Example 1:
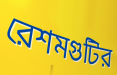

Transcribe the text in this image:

রেশমগুটির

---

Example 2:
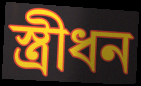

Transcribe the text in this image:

স্ত্রীধন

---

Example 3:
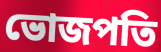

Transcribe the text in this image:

ভোজপতি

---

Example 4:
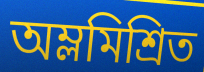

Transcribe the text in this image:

অম্লমিশ্রিত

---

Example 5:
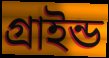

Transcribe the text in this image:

গ্রাইন্ড